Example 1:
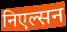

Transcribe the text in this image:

निएल्सन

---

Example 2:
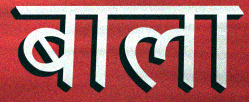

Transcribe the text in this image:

बाला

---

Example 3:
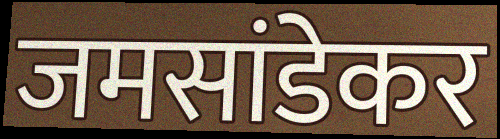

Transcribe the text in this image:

जमसांडेकर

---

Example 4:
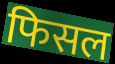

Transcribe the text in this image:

फिसल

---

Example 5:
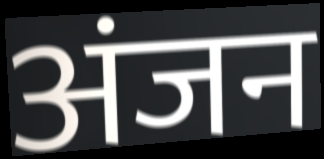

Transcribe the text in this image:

अंजन